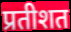
प्रतीशत